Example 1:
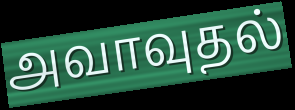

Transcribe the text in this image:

அவாவுதல்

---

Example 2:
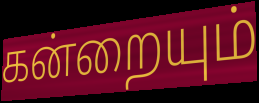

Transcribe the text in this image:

கன்றையும்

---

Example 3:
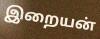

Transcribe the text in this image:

இறையன்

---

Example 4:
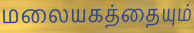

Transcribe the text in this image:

மலையகத்தையும்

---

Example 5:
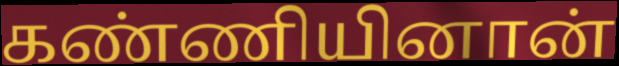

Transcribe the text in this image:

கண்ணியினான்